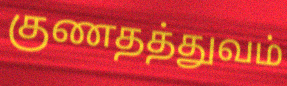
குணதத்துவம்